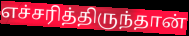
எச்சரித்திருந்தான்